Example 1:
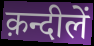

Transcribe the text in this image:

क़न्दीलें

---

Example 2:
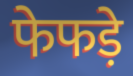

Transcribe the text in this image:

फेफड़े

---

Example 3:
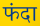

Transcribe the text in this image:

फंदा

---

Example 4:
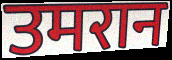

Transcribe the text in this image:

उमरान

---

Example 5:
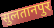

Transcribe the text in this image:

सुलतानपुर